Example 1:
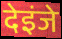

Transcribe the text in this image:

देइंजे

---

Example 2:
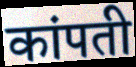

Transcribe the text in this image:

कांपती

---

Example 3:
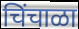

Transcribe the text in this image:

चिंचाळा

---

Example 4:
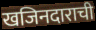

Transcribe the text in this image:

खजिनदाराची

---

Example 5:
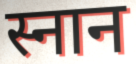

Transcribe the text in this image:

स्नान